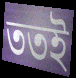
ততই